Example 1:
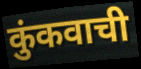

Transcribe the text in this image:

कुंकवाची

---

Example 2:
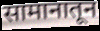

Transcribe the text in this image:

सामानातून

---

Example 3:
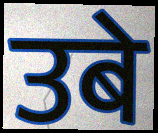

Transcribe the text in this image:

उबे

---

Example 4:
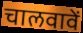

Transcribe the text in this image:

चालवावें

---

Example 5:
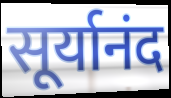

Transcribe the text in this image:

सूर्यानंद